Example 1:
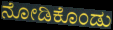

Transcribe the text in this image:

ನೋಡಿಕೊಂಡು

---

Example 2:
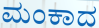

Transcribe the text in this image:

ಮಂಕಾದ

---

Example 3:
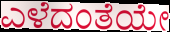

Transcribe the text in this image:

ಎಳೆದಂತೆಯೇ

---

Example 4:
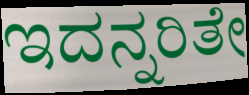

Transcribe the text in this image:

ಇದನ್ನರಿತೇ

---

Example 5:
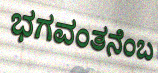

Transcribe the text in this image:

ಭಗವಂತನೆಂಬ